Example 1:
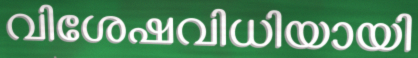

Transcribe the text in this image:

വിശേഷവിധിയായി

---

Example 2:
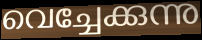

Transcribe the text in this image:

വെച്ചേക്കുന്നു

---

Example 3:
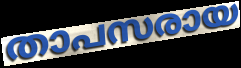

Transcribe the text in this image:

താപസരായ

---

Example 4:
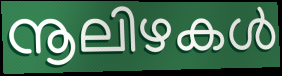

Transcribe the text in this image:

നൂലിഴകൾ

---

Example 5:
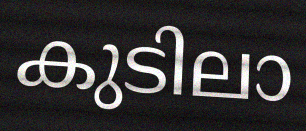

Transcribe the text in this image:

കുടിലാ